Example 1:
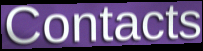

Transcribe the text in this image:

Contacts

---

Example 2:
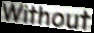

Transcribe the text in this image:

Without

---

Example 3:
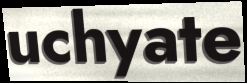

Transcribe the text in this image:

uchyate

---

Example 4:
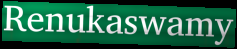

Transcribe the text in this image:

Renukaswamy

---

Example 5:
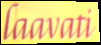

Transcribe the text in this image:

laavati